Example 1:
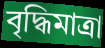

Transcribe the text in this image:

বৃদ্ধিমাত্রা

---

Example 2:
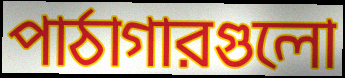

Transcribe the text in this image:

পাঠাগারগুলো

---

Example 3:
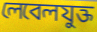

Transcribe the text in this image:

লেবেলযুক্ত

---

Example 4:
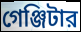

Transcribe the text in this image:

গেঞ্জিটার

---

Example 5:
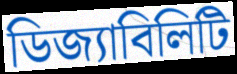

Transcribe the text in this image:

ডিজ্যাবিলিটি